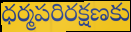
ధర్మపరిరక్షణకు